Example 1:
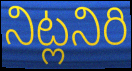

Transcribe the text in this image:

నిట్లనిరి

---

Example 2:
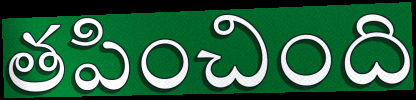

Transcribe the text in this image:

తపించింది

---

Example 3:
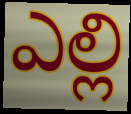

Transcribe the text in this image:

ఎల్లి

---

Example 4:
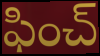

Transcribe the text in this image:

ఫించ్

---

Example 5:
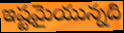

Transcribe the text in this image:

ఇష్టమైయున్నది